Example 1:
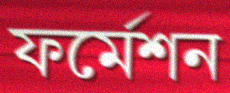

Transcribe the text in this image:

ফর্মেশন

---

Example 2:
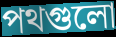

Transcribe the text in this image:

পথগুলো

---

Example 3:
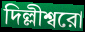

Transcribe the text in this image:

দিল্লীশ্বরো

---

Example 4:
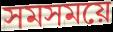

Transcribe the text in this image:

সমসময়ে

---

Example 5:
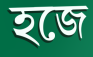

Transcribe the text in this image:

হজে